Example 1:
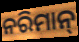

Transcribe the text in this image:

ନରିମାନ୍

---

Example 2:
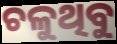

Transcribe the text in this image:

ଚଳୁଥିବୁ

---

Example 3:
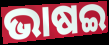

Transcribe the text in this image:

ଭାଷଇ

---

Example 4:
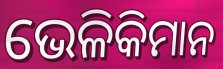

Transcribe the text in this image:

ଭେଳିକିମାନ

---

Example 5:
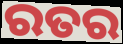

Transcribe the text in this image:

ରତର